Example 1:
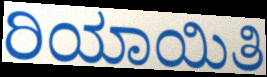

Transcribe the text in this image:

ರಿಯಾಯಿತಿ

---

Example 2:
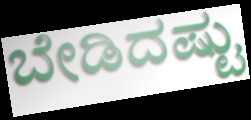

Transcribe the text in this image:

ಬೇಡಿದಷ್ಟು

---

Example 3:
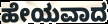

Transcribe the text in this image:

ಹೇಯವಾದ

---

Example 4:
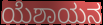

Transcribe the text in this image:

ಯೆಶಾಯನ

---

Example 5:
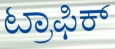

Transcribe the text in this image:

ಟ್ರಾಫಿಕ್